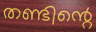
തണ്ടിന്റെ